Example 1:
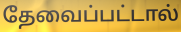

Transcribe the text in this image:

தேவைப்பட்டால்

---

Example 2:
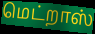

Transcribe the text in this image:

மெட்றாஸ்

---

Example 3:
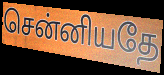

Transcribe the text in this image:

சென்னியதே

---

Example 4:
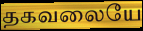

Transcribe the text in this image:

தகவலையே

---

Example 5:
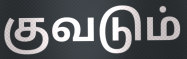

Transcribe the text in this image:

குவடும்